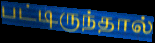
பட்டிருந்தால்